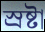
স্ৰষ্টা